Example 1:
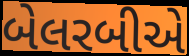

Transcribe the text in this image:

બેલરબીએ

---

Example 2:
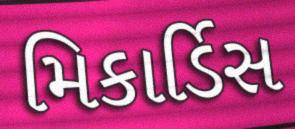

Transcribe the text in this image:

મિકાર્ડિસ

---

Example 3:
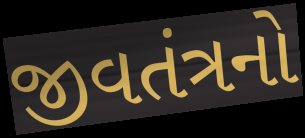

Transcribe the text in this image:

જીવતંત્રનો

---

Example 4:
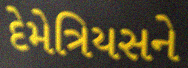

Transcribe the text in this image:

દેમેત્રિયસને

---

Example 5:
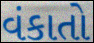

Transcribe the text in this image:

વંકાતો